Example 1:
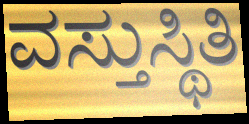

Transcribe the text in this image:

ವಸ್ತುಸ್ಥಿತಿ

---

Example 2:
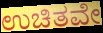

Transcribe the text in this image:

ಉಚಿತವೇ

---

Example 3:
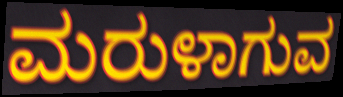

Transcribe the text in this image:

ಮರುಳಾಗುವ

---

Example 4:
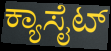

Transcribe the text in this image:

ಕ್ಯಾಸೈಟ್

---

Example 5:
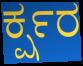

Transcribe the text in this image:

ರ್ಕ್ಷರ